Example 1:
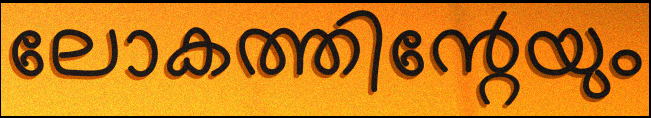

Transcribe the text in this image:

ലോകത്തിന്റേയും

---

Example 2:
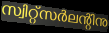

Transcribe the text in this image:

സ്വിറ്റ്സർലന്റിനു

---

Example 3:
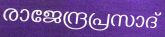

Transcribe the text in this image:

രാജേന്ദ്രപ്രസാദ്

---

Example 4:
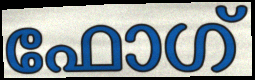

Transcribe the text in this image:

ഫോഗ്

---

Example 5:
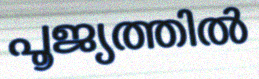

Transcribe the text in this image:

പൂജ്യത്തിൽ